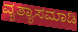
ವ್ಯತ್ಯಾಸಮಾಡಿ